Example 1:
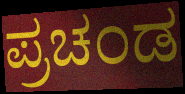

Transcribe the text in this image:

ಪ್ರಚಂಡ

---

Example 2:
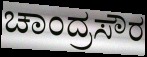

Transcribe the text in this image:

ಚಾಂದ್ರಸೌರ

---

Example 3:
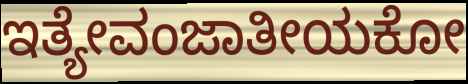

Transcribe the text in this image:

ಇತ್ಯೇವಂಜಾತೀಯಕೋ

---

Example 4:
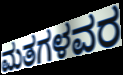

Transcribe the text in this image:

ಮತಗಳವರ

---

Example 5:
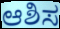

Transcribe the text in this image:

ಆಶಿಸ